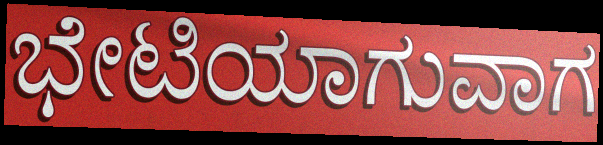
ಭೇಟಿಯಾಗುವಾಗ